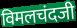
विमलचंदजी